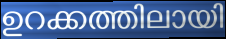
ഉറക്കത്തിലായി